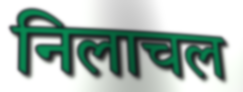
निलाचल